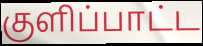
குளிப்பாட்ட